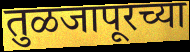
तुळजापूरच्या